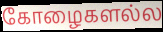
கோழைகளல்ல